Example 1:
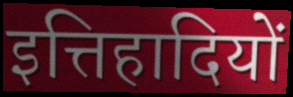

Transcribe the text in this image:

इत्तिहादियों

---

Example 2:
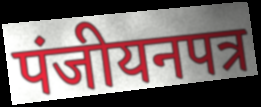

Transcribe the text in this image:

पंजीयनपत्र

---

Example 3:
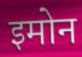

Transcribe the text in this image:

इमोन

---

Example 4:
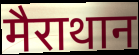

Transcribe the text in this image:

मैराथान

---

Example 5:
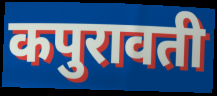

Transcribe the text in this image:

कपुरावती